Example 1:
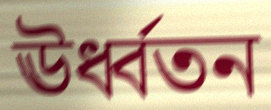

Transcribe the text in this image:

ঊর্ধ্বতন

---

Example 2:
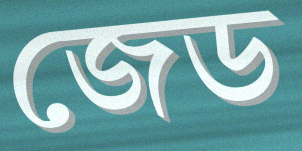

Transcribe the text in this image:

জেড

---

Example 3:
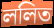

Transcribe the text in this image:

ললিত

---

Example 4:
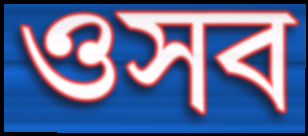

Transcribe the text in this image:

ওসব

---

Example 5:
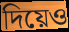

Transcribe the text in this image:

দিয়েও